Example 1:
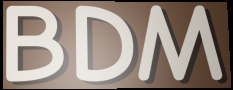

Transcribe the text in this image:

BDM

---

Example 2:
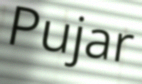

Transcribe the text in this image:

Pujar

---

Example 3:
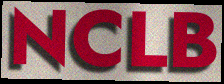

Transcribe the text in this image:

NCLB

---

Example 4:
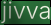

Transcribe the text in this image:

jivva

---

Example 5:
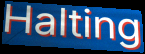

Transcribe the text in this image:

Halting